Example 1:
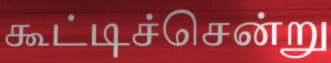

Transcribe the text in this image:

கூட்டிச்சென்று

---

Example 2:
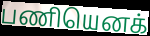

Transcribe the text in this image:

பணியெனக்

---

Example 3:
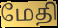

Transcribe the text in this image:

மேதி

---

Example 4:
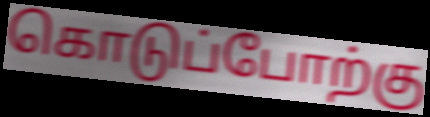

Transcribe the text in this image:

கொடுப்போற்கு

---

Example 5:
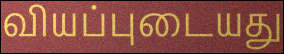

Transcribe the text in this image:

வியப்புடையது